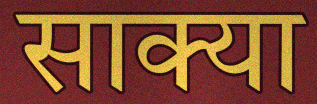
साक्या